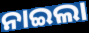
ନାଇଲା